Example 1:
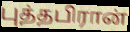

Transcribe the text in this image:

புத்தபிரான்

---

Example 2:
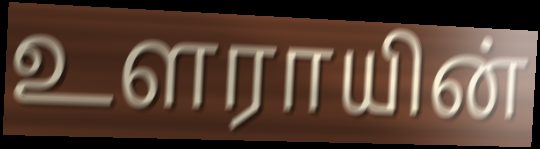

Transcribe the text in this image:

உளராயின்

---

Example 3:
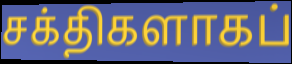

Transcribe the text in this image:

சக்திகளாகப்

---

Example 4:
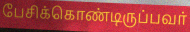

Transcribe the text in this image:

பேசிக்கொண்டிருப்பவர்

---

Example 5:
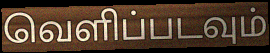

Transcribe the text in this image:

வெளிப்படவும்